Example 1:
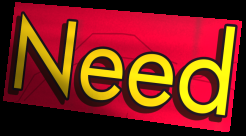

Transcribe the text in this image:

Need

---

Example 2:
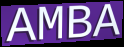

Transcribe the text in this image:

AMBA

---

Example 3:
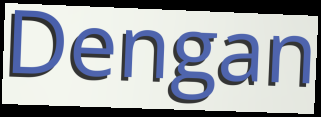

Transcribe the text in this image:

Dengan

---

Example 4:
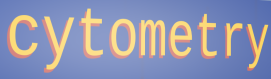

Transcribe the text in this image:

cytometry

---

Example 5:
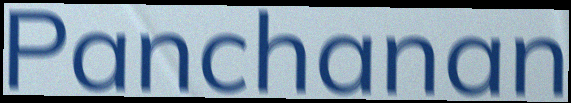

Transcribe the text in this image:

Panchanan